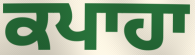
ਕਪਾਹਾ